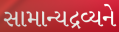
સામાન્યદ્રવ્યને